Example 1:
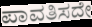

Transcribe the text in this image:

ಪಾವತಿಸದೇ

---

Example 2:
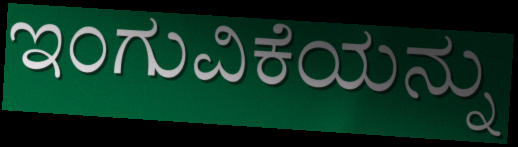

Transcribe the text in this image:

ಇಂಗುವಿಕೆಯನ್ನು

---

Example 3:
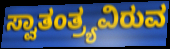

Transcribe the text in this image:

ಸ್ವಾತಂತ್ರ್ಯವಿರುವ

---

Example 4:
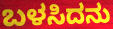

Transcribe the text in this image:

ಬಳಸಿದನು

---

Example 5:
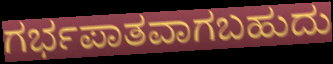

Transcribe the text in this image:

ಗರ್ಭಪಾತವಾಗಬಹುದು